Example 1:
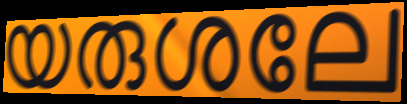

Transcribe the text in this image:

യരുശലേ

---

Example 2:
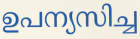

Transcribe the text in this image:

ഉപന്യസിച്ച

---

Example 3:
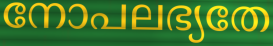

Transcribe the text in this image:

നോപലഭ്യതേ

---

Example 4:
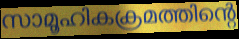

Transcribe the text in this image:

സാമൂഹികക്രമത്തിന്റെ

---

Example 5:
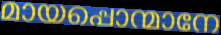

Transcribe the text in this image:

മായപ്പൊന്മാനേ